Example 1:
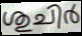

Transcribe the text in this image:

ശുചിർ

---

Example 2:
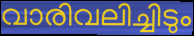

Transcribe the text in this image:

വാരിവലിച്ചിടും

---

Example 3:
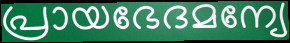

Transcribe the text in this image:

പ്രായഭേദമന്യേ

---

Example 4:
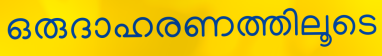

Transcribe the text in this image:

ഒരുദാഹരണത്തിലൂടെ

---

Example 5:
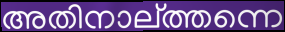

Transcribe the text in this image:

അതിനാല്ത്തന്നെ